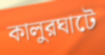
কালুরঘাটে